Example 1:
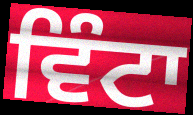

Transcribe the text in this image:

ਵਿੰਟਾ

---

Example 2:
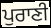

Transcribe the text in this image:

ਪੁਰਾਣੀ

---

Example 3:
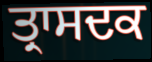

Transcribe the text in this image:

ਤ੍ਰਾਸਦਕ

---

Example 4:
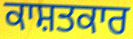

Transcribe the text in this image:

ਕਾਸ਼ਤਕਾਰ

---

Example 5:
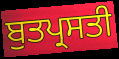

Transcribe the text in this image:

ਬੁਤਪ੍ਰਸਤੀ